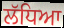
ਲੱਧਿਆ